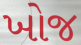
ખોજ